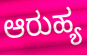
ಆರುಹ್ಯ